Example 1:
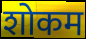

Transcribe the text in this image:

शोकम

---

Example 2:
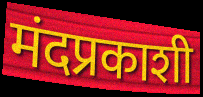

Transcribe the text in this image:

मंदप्रकाशी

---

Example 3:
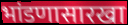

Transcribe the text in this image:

भांडणासारखा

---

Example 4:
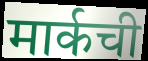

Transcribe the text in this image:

मार्कची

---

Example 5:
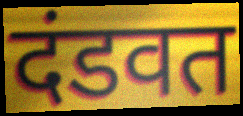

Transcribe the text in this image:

दंडवत